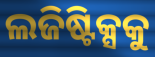
ଲଜିଷ୍ଟିକ୍ସକୁ